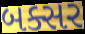
બક્સર